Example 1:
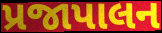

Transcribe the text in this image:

પ્રજાપાલન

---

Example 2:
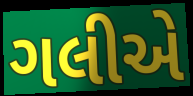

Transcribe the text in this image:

ગલીએ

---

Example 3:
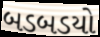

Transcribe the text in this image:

બડબડયો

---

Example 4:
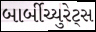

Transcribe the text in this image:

બાર્બીચ્યુરેટ્સ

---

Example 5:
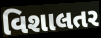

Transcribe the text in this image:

વિશાલતર